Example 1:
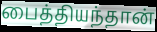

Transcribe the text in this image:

பைத்தியந்தான்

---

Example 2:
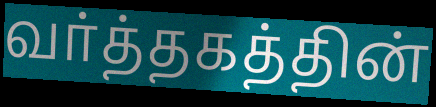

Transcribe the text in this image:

வர்த்தகத்தின்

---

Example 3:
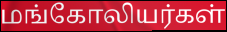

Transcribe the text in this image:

மங்கோலியர்கள்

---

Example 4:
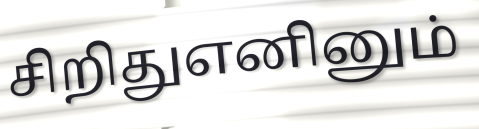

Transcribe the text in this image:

சிறிதுஎனினும்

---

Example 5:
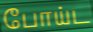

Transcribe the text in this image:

போய்ட